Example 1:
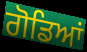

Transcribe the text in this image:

ਗੋਡਿਆਂ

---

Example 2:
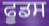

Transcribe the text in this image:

ਫੂਡਸ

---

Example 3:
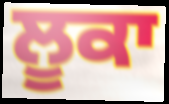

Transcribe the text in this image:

ਲੂਕਾ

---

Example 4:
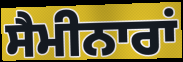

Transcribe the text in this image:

ਸੈਮੀਨਾਰਾਂ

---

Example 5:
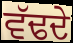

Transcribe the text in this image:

ਵੱਢਦੇ